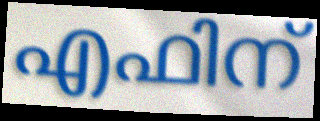
എഫിന്